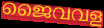
ജൈവവള